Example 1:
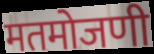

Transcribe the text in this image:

मतमोजणी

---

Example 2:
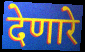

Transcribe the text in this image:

देणारे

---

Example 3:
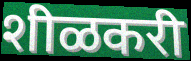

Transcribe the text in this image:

शीळकरी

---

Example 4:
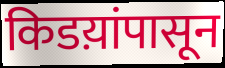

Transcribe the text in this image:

किडय़ांपासून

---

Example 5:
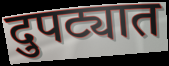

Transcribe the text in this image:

दुपट्यात